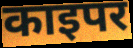
काइपर